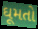
ઘૂમતો